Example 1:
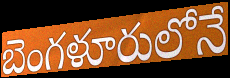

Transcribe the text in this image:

బెంగళూరులోనే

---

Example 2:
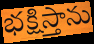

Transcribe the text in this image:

భక్షిస్తాను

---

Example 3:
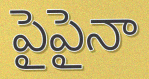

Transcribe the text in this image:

పైపైనా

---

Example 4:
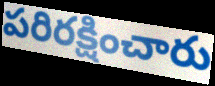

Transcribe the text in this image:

పరిరక్షించారు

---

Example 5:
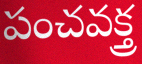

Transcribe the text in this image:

పంచవక్త్ర